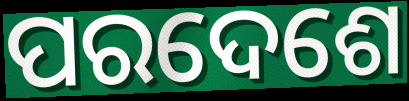
ପରଦେଶେ